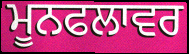
ਮੂਨਫਲਾਵਰ